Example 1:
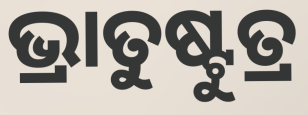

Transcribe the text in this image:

ଭ୍ରାତୁଷ୍ଟୁତ୍ର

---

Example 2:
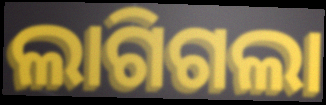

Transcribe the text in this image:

ଲାଗିଗଲା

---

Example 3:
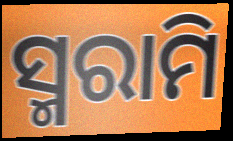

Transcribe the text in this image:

ସ୍ମରାମି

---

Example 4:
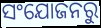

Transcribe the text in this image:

ସଂଯୋଜନରୁ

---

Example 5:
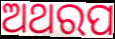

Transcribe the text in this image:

ଅଥରପ